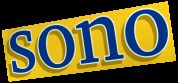
sono